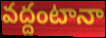
వద్దంటానా